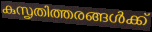
കുസൃതിത്തരങ്ങൾക്ക്